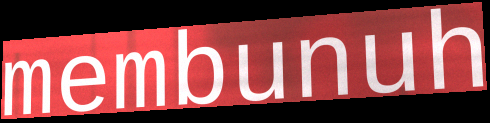
membunuh